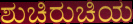
ಶುಚಿರುಚಿಯ